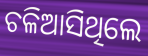
ଚଳିଆସିଥିଲେ